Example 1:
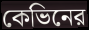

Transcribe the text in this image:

কেভিনের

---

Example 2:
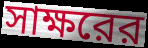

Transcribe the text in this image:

সাক্ষরের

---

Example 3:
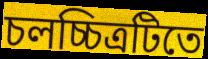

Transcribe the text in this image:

চলচ্চিত্রটিতে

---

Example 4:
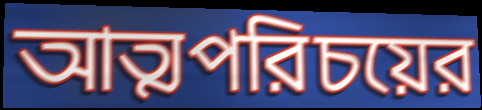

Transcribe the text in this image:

আত্মপরিচয়ের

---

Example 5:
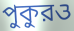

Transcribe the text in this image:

পুকুরও